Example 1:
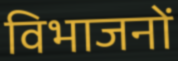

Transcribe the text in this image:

विभाजनों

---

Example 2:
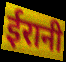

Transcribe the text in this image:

ईरानी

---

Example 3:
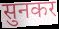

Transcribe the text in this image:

सुनकर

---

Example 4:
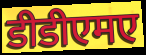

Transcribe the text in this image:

डीडीएमए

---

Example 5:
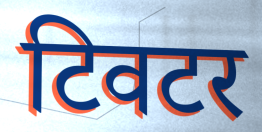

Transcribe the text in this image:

टिवटर